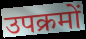
उपक्रमों